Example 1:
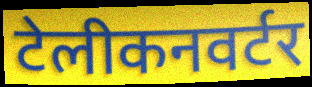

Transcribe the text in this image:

टेलीकनवर्टर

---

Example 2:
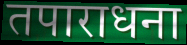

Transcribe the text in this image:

तपाराधना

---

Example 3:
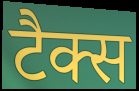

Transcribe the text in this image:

टैक्स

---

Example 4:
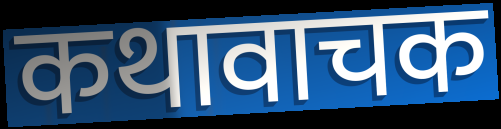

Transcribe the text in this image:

कथावाचक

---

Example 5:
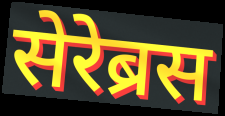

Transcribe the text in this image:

सेरेब्रस